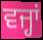
ਵਜ੍ਹਾਂ